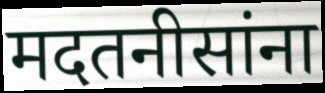
मदतनीसांना